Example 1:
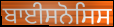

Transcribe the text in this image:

ਬਾਈਸਨੋਸਿਸ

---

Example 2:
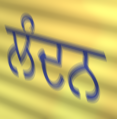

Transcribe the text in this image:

ਲੰਦਨ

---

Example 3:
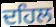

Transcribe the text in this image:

ਦਹਿਲ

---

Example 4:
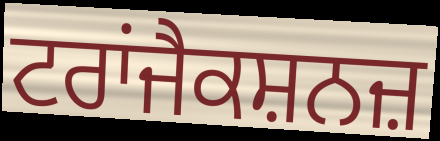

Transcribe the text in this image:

ਟਰਾਂਜੈਕਸ਼ਨਜ਼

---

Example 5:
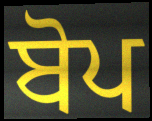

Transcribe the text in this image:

ਬੋਪ